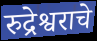
रुद्रेश्वराचे